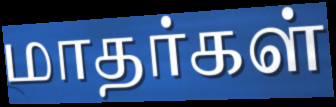
மாதர்கள்